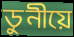
ডুনীয়ে